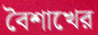
বৈশাখের